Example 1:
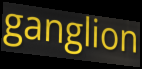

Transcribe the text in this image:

ganglion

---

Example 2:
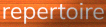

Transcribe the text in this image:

repertoire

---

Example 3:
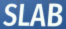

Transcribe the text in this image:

SLAB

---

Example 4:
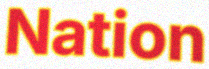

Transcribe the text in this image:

Nation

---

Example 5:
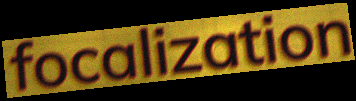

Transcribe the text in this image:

focalization